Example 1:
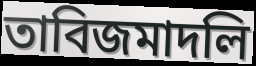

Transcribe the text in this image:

তাবিজমাদলি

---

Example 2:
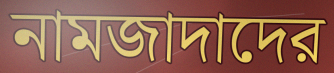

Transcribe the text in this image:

নামজাদাদের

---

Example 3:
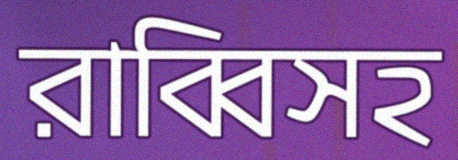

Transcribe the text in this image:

রাব্বিসহ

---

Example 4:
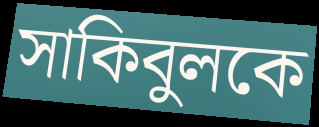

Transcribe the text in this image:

সাকিবুলকে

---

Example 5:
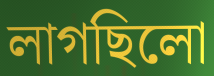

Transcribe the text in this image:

লাগছিলো